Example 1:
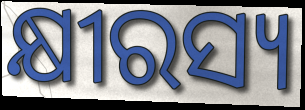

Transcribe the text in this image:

କ୍ଷୀରସ୍ୟ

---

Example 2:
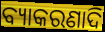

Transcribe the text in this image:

ବ୍ୟାକରଣାଦି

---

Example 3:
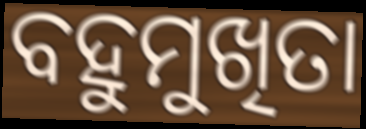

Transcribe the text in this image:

ବହୁମୁଖିତା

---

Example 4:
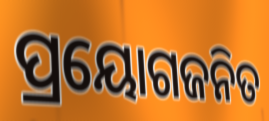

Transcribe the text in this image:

ପ୍ରୟୋଗଜନିତ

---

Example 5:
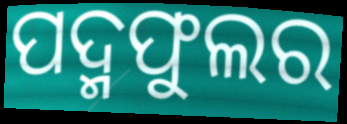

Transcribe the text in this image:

ପଦ୍ମଫୁଲର